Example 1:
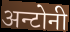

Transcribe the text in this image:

अन्टोनी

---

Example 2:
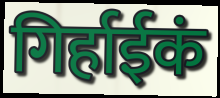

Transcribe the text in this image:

गिर्हाईकं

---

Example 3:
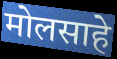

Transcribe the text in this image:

मोलसाहे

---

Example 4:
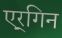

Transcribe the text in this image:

एर्गिन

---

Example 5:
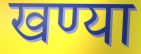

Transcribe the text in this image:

खण्या